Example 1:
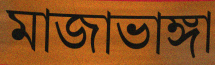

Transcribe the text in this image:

মাজাভাঙ্গা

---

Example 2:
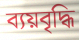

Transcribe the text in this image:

ব্যয়বৃদ্ধি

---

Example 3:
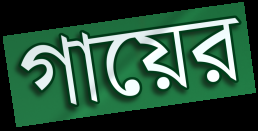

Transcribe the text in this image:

গায়ের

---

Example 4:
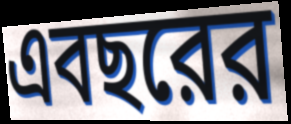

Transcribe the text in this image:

এবছরের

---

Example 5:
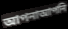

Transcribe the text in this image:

আপনাআপনি